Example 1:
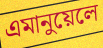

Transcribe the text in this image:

এমানুয়েলে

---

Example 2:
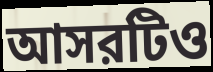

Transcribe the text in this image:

আসরটিও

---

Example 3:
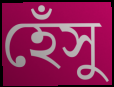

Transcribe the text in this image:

হেঁসু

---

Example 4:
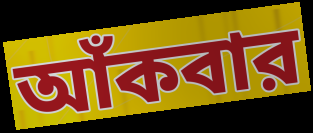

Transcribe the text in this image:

আঁকবার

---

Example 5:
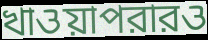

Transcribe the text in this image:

খাওয়াপরারও